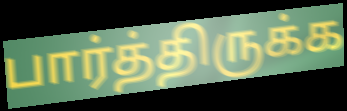
பார்த்திருக்க